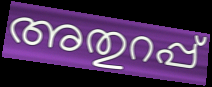
അതുറപ്പ്